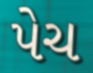
પેચ